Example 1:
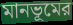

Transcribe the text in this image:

মানভূমের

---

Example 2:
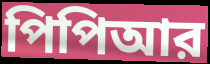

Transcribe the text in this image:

পিপিআর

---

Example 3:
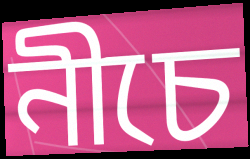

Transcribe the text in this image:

নীচে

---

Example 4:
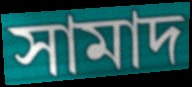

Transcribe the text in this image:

সামাদ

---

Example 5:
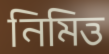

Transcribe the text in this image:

নিমিত্ত